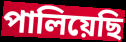
পালিয়েছি